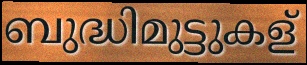
ബുദ്ധിമുട്ടുകള്